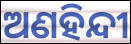
ଅଣହିନ୍ଦୀ